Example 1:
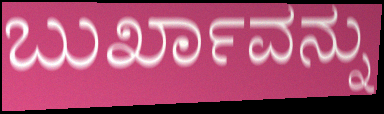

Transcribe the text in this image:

ಬುರ್ಖಾವನ್ನು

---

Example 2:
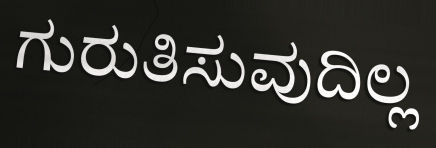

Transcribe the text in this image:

ಗುರುತಿಸುವುದಿಲ್ಲ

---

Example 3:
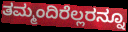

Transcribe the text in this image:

ತಮ್ಮಂದಿರೆಲ್ಲರನ್ನೂ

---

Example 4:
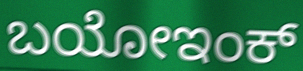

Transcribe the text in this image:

ಬಯೋಇಂಕ್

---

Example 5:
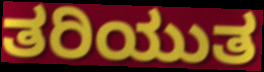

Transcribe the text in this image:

ತರಿಯುತ